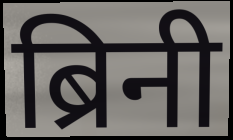
ब्रिनी